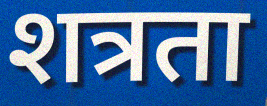
शत्रता